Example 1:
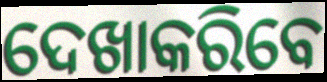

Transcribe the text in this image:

ଦେଖାକରିବେ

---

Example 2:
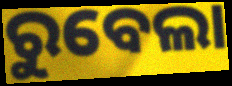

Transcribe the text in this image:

ରୁବେଲା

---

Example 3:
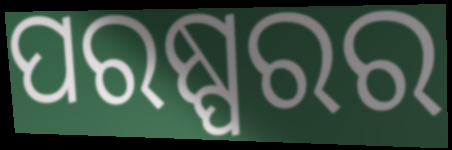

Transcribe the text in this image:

ପରଷ୍ପରର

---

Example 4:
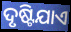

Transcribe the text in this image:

ଦୃଷ୍ଟିଯାଏ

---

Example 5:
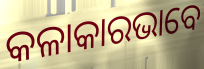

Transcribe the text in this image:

କଳାକାରଭାବେ